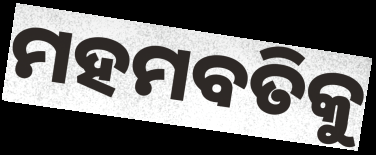
ମହମବତିକୁ